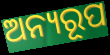
ଅନ୍ୟରୂପ